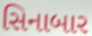
સિનાબાર